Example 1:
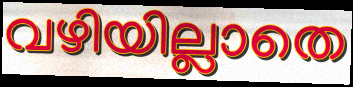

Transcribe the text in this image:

വഴിയില്ലാതെ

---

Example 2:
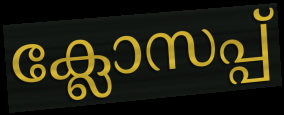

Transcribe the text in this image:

ക്ലോസപ്പ്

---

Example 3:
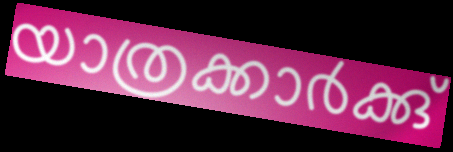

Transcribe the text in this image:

യാത്രക്കാർക്കു്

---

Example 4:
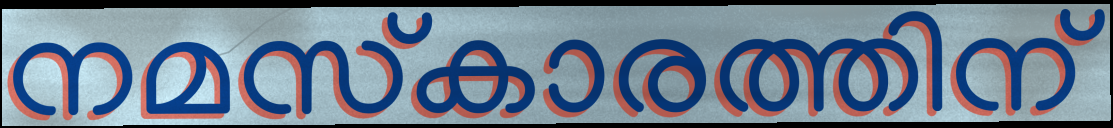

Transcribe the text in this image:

നമസ്‌കാരത്തിന്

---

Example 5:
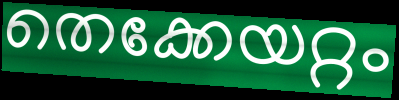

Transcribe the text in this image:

തെക്കേയറ്റം